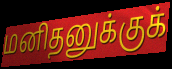
மனிதனுக்குக்